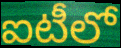
ఐటీలో